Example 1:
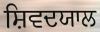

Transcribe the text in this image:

ਸ਼ਿਵਦਯਾਲ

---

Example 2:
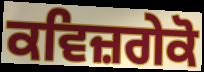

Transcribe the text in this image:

ਕਵਿਜ਼ਗੇਕੋ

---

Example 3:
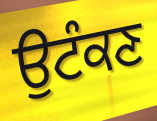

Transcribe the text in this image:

ਉਟੰਕਣ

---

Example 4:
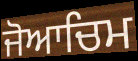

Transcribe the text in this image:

ਜੋਆਚਿਮ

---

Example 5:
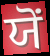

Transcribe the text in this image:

ਯੋਂ